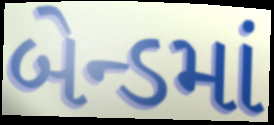
બેન્ડમાં